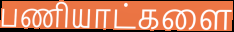
பணியாட்களை